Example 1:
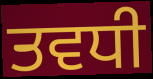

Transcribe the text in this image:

ਤਵਧੀ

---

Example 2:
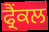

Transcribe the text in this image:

ਫ੍ਰੈਂਕਲ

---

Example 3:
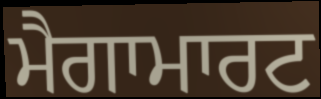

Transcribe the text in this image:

ਮੈਗਾਮਾਰਟ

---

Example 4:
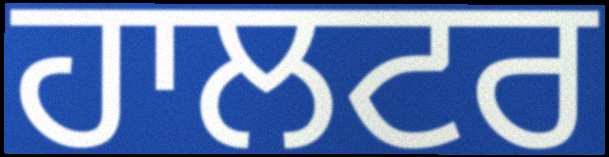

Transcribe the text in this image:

ਹਾਲਟਰ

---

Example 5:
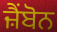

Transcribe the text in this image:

ਜ਼ੈਂਬੋਨ